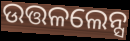
ଉତ୍ତଳଲେନ୍ସ